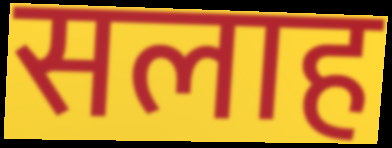
सलाह